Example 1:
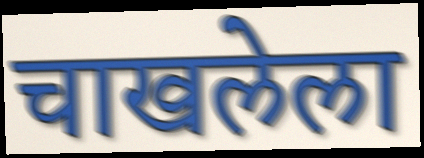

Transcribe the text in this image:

चाखलेला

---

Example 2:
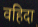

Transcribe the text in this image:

वहिदा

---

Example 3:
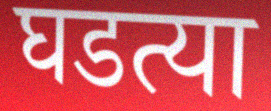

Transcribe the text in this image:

घडत्या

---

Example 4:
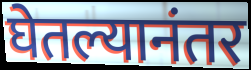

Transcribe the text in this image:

घेतल्यानंतर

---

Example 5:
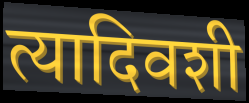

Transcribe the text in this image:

त्यादिवशी